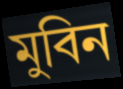
মুবিন